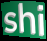
shi